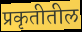
प्रकृतीतील